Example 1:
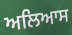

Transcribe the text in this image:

ਅਲਿਆਸ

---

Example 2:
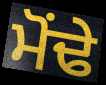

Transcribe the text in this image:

ਮੋਂਢੇ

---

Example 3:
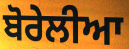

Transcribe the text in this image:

ਬੋਰੇਲੀਆ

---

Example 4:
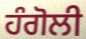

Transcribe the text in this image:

ਹੰਗੋਲੀ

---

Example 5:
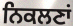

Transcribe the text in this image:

ਨਿਕਲਣਾਂ